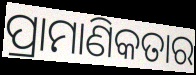
ପ୍ରାମାଣିକତାର